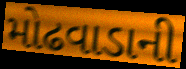
મોઢવાડાની